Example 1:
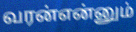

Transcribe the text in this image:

வரன்என்னும்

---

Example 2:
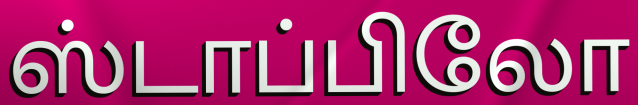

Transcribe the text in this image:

ஸ்டாப்பிலோ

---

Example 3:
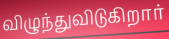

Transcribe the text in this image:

விழுந்துவிடுகிறார்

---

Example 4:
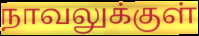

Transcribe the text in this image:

நாவலுக்குள்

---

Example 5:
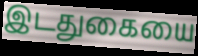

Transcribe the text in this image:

இடதுகையை